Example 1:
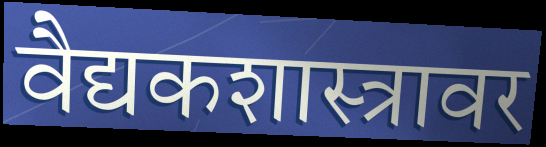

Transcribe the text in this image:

वैद्यकशास्त्रावर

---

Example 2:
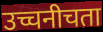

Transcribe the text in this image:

उच्चनीचता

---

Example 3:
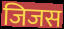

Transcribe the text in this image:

जिजस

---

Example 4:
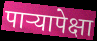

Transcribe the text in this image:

पाऱ्यापेक्षा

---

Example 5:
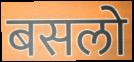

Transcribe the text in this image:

बसलो